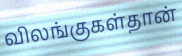
விலங்குகள்தான்